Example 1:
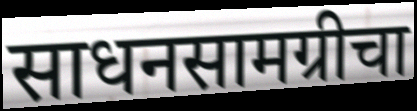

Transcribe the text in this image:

साधनसामग्रीचा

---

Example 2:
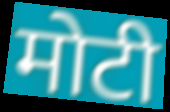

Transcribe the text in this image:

मोटी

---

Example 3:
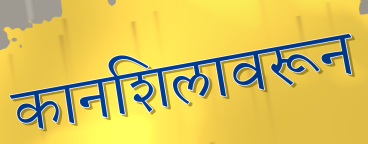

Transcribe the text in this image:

कानशिलावरून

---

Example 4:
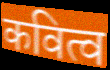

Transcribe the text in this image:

कवित्व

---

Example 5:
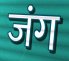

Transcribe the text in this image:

जंग